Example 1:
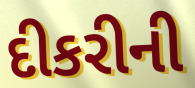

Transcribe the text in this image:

દીકરીની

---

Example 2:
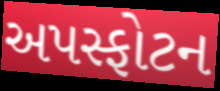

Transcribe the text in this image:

અપસ્ફોટન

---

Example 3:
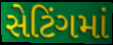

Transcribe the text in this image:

સેટિંગમાં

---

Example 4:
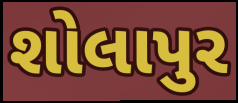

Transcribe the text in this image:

શોલાપુર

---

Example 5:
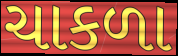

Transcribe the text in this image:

ચાકળા